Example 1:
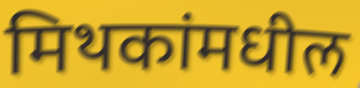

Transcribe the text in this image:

मिथकांमधील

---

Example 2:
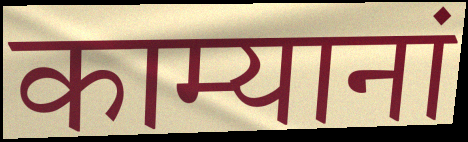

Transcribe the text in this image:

काम्यानां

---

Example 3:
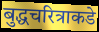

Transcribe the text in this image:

बुद्धचरित्राकडे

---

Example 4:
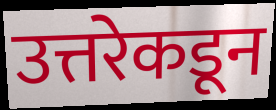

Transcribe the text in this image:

उत्तरेकडून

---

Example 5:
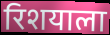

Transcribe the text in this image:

रिशयाला